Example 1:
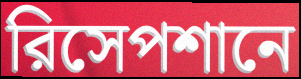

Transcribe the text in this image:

রিসেপশানে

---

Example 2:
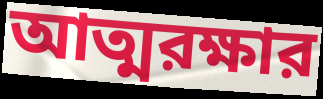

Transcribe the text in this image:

আত্মরক্ষার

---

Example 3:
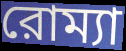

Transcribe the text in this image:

রোম্যা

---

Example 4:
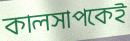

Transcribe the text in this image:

কালসাপকেই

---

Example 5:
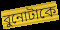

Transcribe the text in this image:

বুনোটাকে